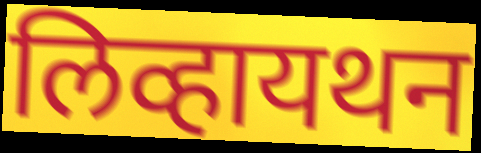
लिव्हायथन